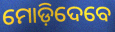
ମୋଡ଼ିଦେବେ